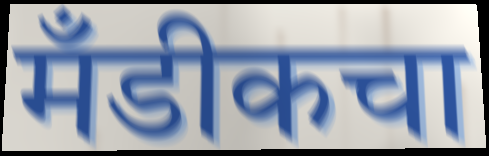
मँडीकचा